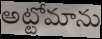
అట్టోమాను